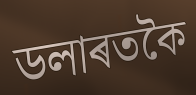
ডলাৰতকৈ